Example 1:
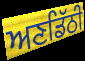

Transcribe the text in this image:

ਅਣਡਿੱਠੀ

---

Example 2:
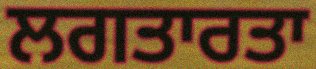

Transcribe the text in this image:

ਲਗਤਾਰਤਾ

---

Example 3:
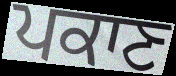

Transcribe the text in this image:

ਪਕਾਣ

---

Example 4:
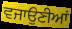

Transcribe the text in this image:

ਵਜਾਉਣੀਆਂ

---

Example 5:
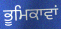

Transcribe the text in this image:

ਭੂਮਿਕਾਵਾਂ